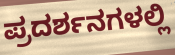
ಪ್ರದರ್ಶನಗಳಲ್ಲಿ